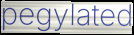
pegylated